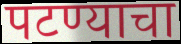
पटण्याचा